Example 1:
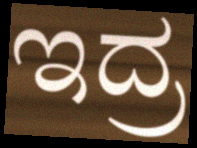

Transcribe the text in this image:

ಇದ್ರ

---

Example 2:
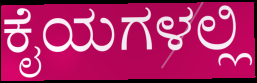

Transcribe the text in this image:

ಕೈಯಗಳಲ್ಲಿ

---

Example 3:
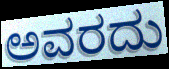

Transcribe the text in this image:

ಅವರದು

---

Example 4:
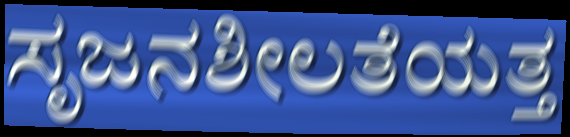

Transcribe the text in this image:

ಸೃಜನಶೀಲತೆಯತ್ತ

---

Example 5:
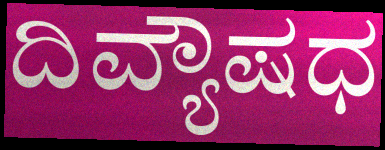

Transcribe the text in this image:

ದಿವ್ಯೌಷಧ